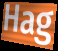
Hag